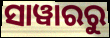
ସାୱାରରୁ